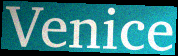
Venice